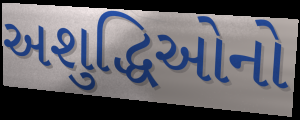
અશુદ્ધિઓનો